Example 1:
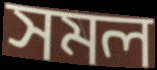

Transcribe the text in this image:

সমল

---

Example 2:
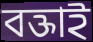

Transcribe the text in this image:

বক্তাই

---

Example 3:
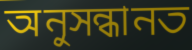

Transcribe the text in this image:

অনুসন্ধানত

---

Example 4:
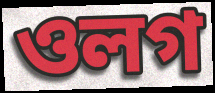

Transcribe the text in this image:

ওলগ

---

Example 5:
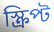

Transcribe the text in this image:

স্ক্ৰিপ্ট